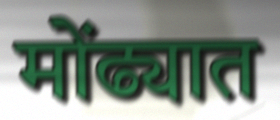
मोंढ्यात